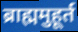
ब्राह्ममुहूर्त